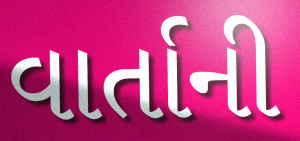
વાર્તાની